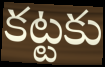
కట్టకు